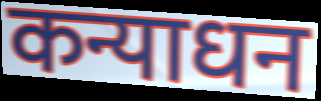
कन्याधन